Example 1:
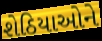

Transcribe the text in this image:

શેઠિયાઓને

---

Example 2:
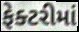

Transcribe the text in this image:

ફેક્ટરીમાં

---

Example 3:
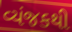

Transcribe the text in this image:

વ્યંજકથી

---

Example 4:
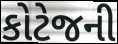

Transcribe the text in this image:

કોટેજની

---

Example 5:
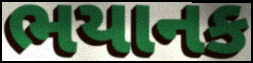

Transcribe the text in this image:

ભયાનક